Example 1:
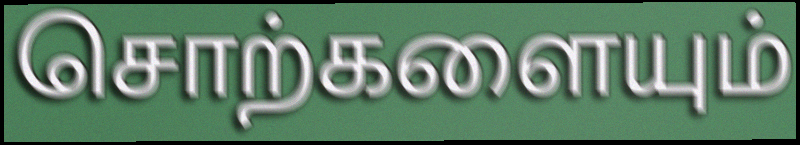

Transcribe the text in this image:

சொற்களையும்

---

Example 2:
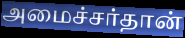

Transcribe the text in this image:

அமைச்சர்தான்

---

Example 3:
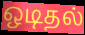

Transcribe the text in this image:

ஒடிதல்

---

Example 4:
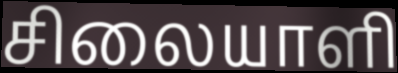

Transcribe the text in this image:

சிலையாளி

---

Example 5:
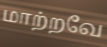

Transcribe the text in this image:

மாற்றவே